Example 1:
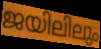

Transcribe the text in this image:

ജയിലിലും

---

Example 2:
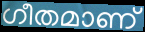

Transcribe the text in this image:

ഗീതമാണ്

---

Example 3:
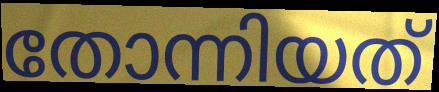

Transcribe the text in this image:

തോന്നിയത്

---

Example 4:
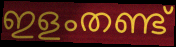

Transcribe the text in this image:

ഇളംതണ്ട്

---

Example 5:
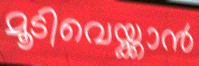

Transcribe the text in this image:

മൂടിവെയ്ക്കാൻ